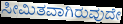
ಸೀಮಿತವಾಗಿರುವುದೇ